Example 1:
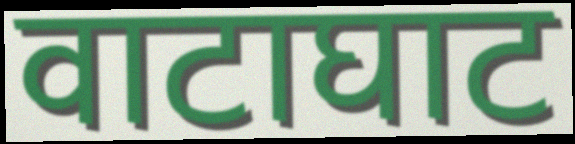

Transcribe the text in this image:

वाटाघाट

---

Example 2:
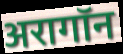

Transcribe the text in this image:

अरागॉन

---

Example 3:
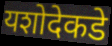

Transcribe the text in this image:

यशोदेकडे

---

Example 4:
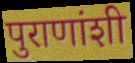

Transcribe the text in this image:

पुराणांशी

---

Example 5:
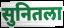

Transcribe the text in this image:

सुनितला